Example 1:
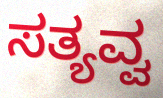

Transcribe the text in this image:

ಸತ್ಯವ್ವ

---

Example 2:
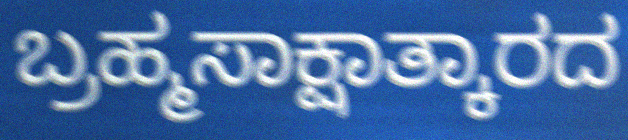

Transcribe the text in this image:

ಬ್ರಹ್ಮಸಾಕ್ಷಾತ್ಕಾರದ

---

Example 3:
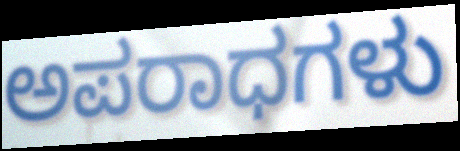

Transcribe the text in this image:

ಅಪರಾಧಗಳು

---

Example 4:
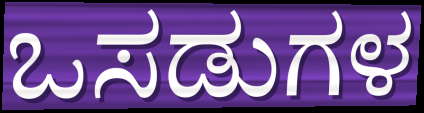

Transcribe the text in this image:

ಒಸಡುಗಳ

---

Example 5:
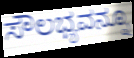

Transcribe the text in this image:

ಸೌಲಭ್ಯವನ್ನೂ